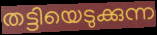
തട്ടിയെടുക്കുന്ന